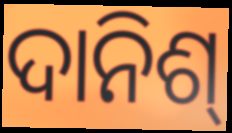
ଦାନିଶ୍